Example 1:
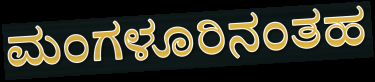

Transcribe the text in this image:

ಮಂಗಳೂರಿನಂತಹ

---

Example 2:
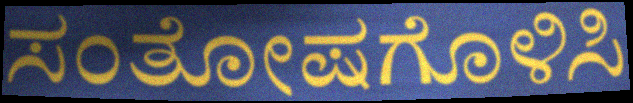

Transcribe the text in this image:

ಸಂತೋಷಗೊಳಿಸಿ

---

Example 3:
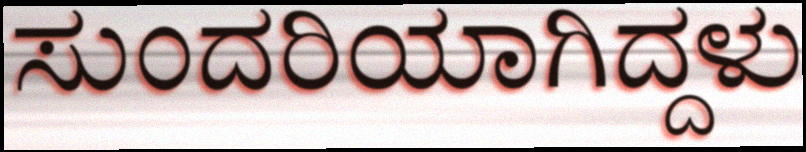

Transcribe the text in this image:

ಸುಂದರಿಯಾಗಿದ್ದಳು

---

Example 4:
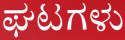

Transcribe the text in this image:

ಘಟಗಳು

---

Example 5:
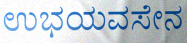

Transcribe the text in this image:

ಉಭಯವಸೇನ